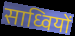
साध्वियों